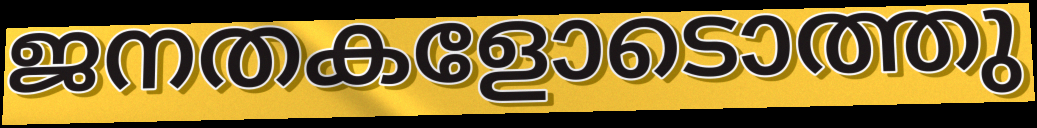
ജനതകളോടൊത്തു